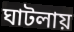
ঘাটলায়